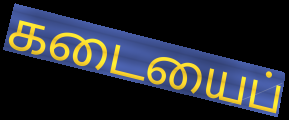
கடையைப்